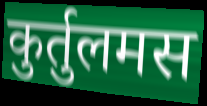
कुर्तुलमस